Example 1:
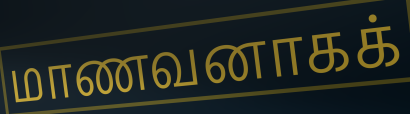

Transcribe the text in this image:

மாணவனாகக்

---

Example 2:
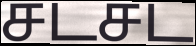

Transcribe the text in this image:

சடசட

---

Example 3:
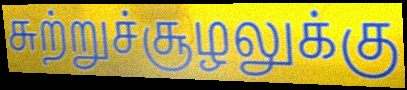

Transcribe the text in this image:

சுற்றுச்சூழலுக்கு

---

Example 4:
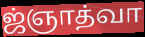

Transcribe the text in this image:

ஜ்ஞாத்வா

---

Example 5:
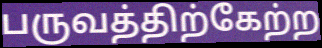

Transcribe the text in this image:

பருவத்திற்கேற்ற